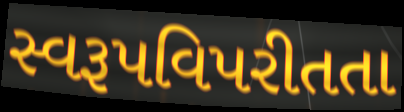
સ્વરૂપવિપરીતતા